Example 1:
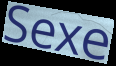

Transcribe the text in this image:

Sexe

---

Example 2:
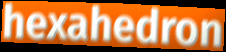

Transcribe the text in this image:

hexahedron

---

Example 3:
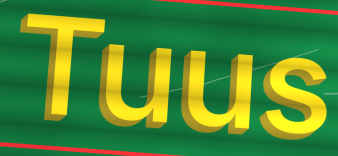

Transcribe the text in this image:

Tuus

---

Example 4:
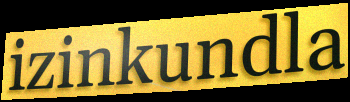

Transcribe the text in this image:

izinkundla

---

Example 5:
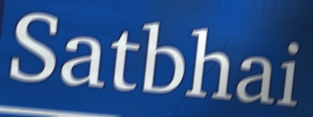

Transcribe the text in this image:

Satbhai